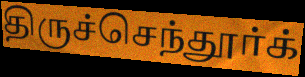
திருச்செந்தூர்க்